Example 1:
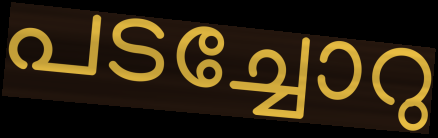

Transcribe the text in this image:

പടച്ചോറു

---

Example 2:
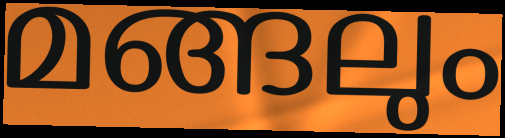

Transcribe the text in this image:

മങ്ങലും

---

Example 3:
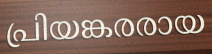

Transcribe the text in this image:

പ്രിയങ്കരരായ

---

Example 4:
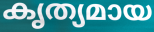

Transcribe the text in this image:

കൃത്യമായ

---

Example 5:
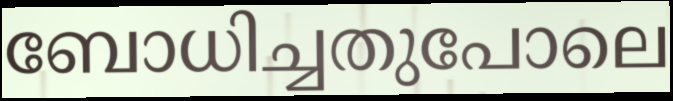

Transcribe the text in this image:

ബോധിച്ചതുപോലെ